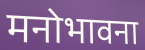
मनोभावना